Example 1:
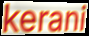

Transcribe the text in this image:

kerani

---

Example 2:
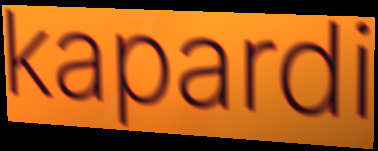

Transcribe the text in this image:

kapardi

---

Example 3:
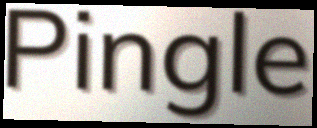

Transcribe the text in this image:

Pingle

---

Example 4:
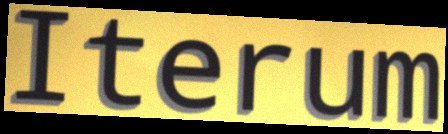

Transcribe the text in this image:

Iterum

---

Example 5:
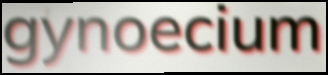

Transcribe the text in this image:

gynoecium